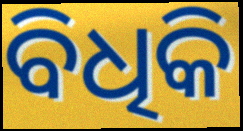
ବିଧିକି